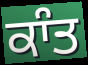
ਕਾੰਤ